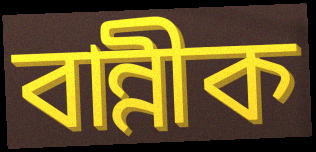
বান্নীক